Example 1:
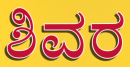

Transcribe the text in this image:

ಶಿವರ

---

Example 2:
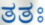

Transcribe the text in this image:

ತತಃ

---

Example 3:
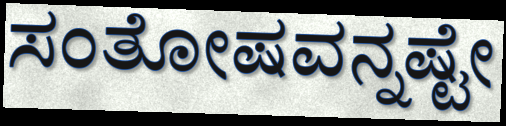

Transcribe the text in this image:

ಸಂತೋಷವನ್ನಷ್ಟೇ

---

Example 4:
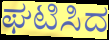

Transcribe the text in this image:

ಘಟಿಸಿದ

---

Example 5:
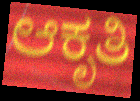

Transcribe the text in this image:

ಆಕೃತಿ